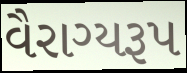
વૈરાગ્યરૂપ